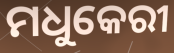
ମଧୁକେରୀ